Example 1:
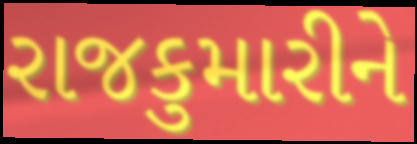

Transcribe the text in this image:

રાજકુમારીને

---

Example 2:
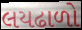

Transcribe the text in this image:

લયઢાળો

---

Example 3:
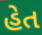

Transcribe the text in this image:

હેત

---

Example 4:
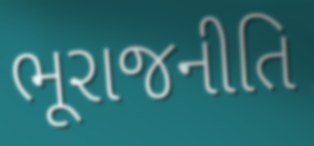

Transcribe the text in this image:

ભૂરાજનીતિ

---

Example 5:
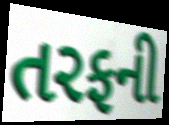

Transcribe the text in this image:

તરફની